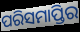
ପରିସମାପ୍ତିର